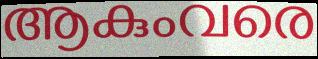
ആകുംവരെ